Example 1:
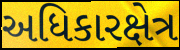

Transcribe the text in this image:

અધિકારક્ષેત્ર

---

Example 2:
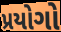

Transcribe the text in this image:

પ્રયોગો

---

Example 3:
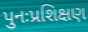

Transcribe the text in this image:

પુનઃપ્રશિક્ષણ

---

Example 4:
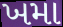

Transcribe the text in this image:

ખમા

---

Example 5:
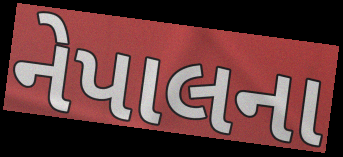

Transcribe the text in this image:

નેપાલના